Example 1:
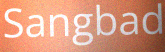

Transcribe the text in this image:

Sangbad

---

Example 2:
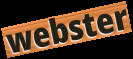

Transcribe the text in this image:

webster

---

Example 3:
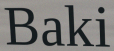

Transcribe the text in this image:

Baki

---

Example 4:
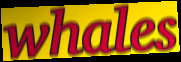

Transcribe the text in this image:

whales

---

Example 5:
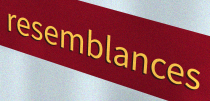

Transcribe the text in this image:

resemblances